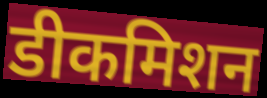
डीकमिशन